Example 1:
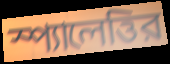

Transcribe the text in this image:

স্প্যালেত্তির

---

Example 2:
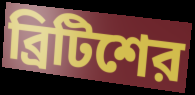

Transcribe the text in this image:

ব্রিটিশের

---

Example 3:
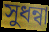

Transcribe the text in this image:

সুধন্বা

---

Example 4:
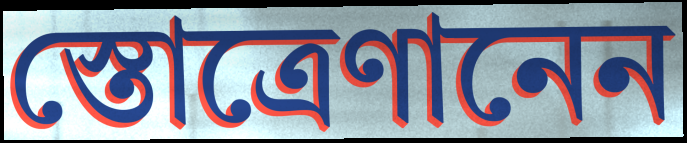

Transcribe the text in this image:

স্তোত্রেণানেন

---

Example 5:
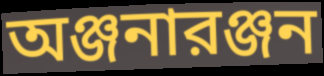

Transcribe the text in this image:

অঞ্জনারঞ্জন